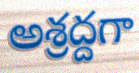
అశ్రద్దగా